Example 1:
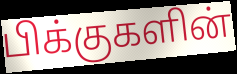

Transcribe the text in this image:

பிக்குகளின்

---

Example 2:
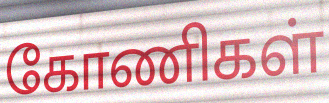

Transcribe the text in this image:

கோணிகள்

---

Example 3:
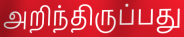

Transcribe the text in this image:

அறிந்திருப்பது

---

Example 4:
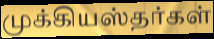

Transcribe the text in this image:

முக்கியஸ்தர்கள்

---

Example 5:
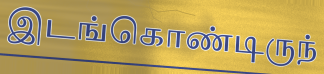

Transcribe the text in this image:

இடங்கொண்டிருந்